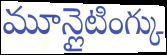
మూన్లైటింగ్కు